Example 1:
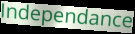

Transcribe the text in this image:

Independance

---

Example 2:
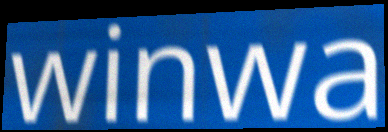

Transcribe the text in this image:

winwa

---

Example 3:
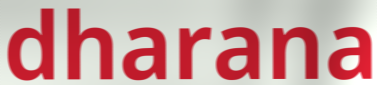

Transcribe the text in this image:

dharana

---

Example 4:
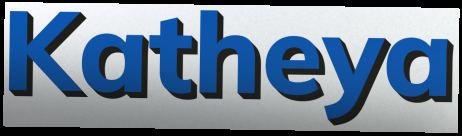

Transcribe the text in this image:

Katheya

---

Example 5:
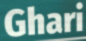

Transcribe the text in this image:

Ghari